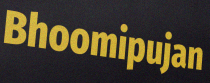
Bhoomipujan